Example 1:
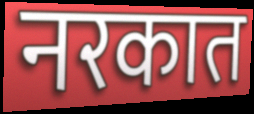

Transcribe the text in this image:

नरकात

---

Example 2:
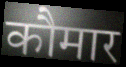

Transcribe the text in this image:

कौमार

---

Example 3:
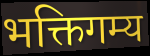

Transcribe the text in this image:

भक्तिगम्य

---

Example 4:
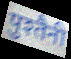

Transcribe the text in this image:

पुश्तैनी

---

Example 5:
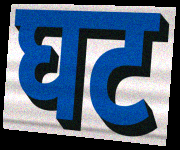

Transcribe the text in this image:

घट